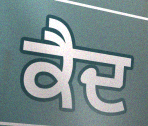
ਕੈਦ